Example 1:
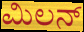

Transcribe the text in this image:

ಮಿಲನ್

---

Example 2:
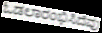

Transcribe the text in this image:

ಓಡಲಾರಂಭಿಸಿದೆವು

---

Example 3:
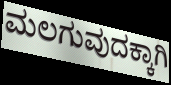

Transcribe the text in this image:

ಮಲಗುವುದಕ್ಕಾಗಿ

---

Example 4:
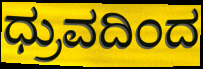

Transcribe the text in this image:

ಧ್ರುವದಿಂದ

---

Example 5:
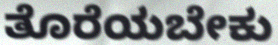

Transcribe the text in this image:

ತೊರೆಯಬೇಕು